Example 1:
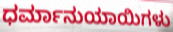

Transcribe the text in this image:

ಧರ್ಮಾನುಯಾಯಿಗಳು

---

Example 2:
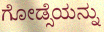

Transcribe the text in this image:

ಗೋಡ್ಸೆಯನ್ನು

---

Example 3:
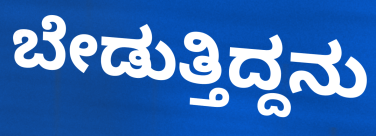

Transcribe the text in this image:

ಬೇಡುತ್ತಿದ್ದನು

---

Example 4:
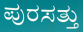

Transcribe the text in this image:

ಪುರಸತ್ತು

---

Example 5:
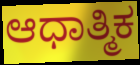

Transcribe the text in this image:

ಆಧಾತ್ಮಿಕ